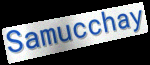
Samucchay